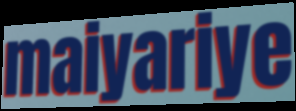
maiyariye